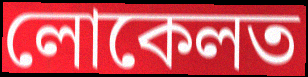
লোকেলত